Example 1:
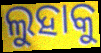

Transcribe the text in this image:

ଲୁହାକୁ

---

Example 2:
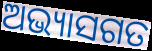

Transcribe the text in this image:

ଅଭ୍ଯାସଗତ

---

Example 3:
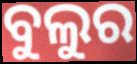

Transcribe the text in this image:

ବୁଲୁର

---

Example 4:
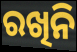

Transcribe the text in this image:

ରଖିନି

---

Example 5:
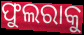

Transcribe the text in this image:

ଫୁଲରାକୁ